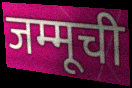
जम्मूची